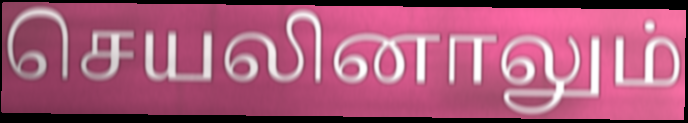
செயலினாலும்